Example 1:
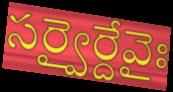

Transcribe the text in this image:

సర్వైర్దేవైః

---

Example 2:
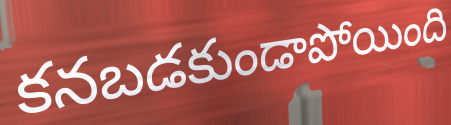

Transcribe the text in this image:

కనబడకుండాపోయింది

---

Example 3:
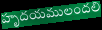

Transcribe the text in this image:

హృదయములందలి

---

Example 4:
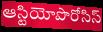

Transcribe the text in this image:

ఆస్టియోపొరోసిస్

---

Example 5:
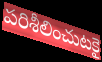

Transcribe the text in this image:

పరిశీలించుటకై